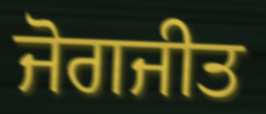
ਜੋਗਜੀਤ